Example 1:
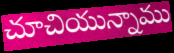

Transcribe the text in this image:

చూచియున్నాము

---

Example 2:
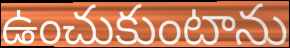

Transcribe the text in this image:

ఉంచుకుంటాను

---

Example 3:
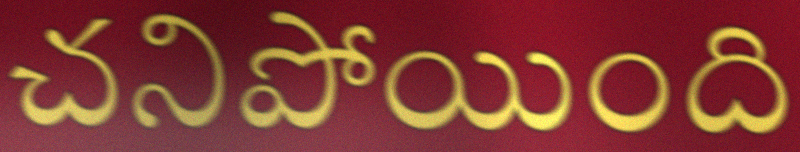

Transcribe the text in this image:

చనిపోయింది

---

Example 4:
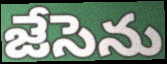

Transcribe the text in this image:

జేసెను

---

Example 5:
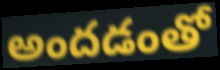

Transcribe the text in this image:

అందడంతో